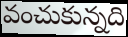
వంచుకున్నది